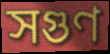
সগুণ